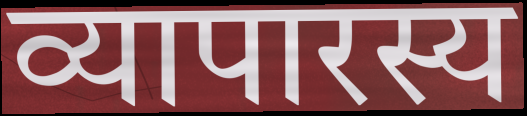
व्यापारस्य